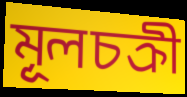
মূলচক্রী